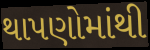
થાપણોમાંથી